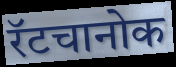
रॅटचानोक